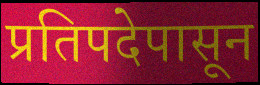
प्रतिपदेपासून